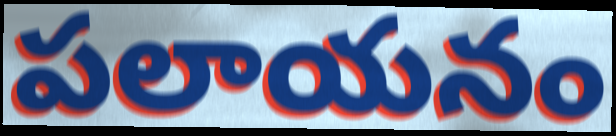
పలాయనం